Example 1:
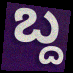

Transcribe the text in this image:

ಬ್ದ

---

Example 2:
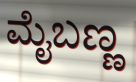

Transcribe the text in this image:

ಮೈಬಣ್ಣ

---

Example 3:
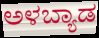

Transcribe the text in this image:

ಅಳಬ್ಯಾಡ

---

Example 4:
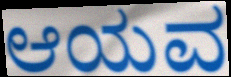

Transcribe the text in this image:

ಆಯವ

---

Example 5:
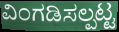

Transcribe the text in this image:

ವಿಂಗಡಿಸಲ್ಪಟ್ಟ